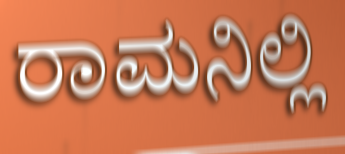
ರಾಮನಿಲ್ಲಿ